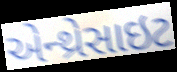
એન્થ્રેસાઇટ